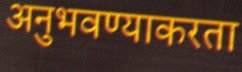
अनुभवण्याकरता